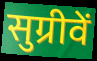
सुग्रीवें